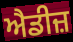
ਐਡੀਜ਼